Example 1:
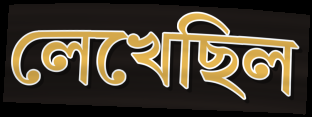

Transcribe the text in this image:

লেখেছিল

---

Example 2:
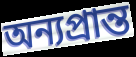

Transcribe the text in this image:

অন্যপ্রান্ত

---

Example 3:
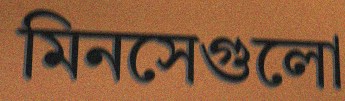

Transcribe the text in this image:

মিনসেগুলো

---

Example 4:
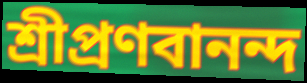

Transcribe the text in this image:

শ্রীপ্রণবানন্দ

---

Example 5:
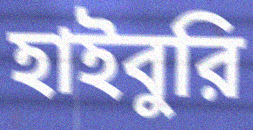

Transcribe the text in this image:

হাইবুরি